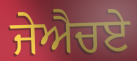
ਜੇਐਚਏ